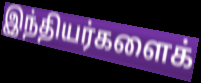
இந்தியர்களைக்